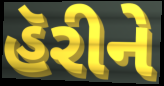
હૅરીને